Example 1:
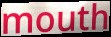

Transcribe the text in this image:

mouth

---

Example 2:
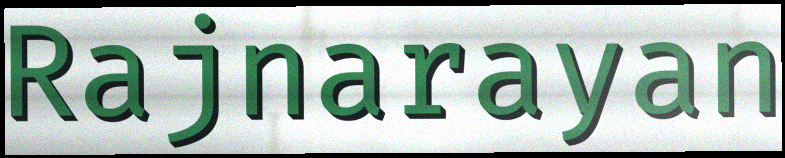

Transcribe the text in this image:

Rajnarayan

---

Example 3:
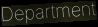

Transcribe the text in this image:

Department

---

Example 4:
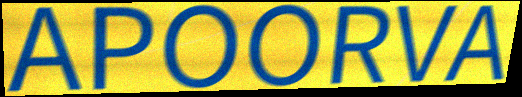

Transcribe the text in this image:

APOORVA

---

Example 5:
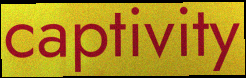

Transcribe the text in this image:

captivity